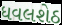
ધવલશેઠ